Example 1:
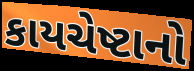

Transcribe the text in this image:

કાયચેષ્ટાનો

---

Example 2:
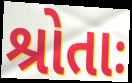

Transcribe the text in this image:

શ્રોતાઃ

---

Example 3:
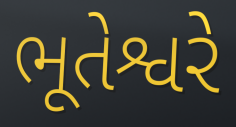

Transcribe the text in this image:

ભૂતેશ્વરે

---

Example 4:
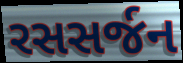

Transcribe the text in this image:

રસસર્જન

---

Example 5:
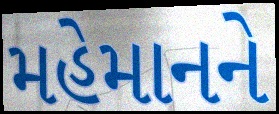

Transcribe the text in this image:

મહેમાનને